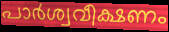
പാർശ്വവീക്ഷണം